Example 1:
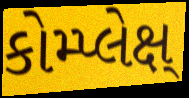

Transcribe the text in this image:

કોમ્પ્લેક્ષ્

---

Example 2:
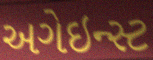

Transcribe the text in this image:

અગેઇન્સ્ટ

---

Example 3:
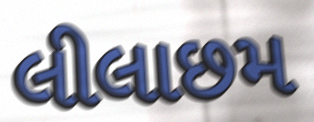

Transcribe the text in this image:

લીલાછમ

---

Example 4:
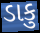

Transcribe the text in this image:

ડાકુ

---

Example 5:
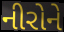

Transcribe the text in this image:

નીરોને